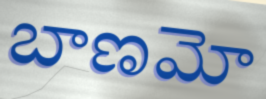
బాణమో